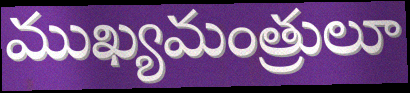
ముఖ్యమంత్రులూ